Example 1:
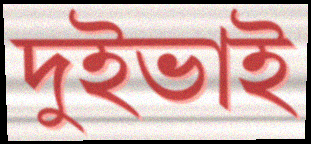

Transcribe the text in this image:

দুইভাই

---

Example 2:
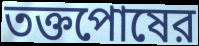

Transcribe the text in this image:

তক্তপোষের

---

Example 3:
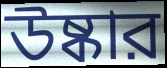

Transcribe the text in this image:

উষ্কার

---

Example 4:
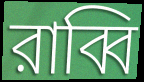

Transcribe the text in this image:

রাব্বি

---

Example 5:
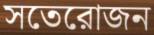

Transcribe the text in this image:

সতেরোজন